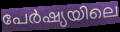
പേർഷ്യയിലെ